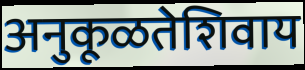
अनुकूळतेशिवाय